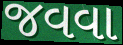
જવવા